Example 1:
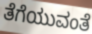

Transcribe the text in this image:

ತೆಗೆಯುವಂತೆ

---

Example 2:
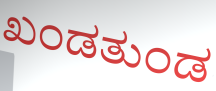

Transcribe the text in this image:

ಖಂಡತುಂಡ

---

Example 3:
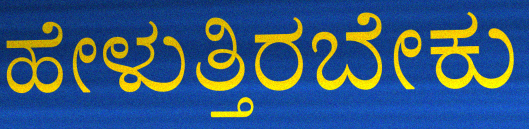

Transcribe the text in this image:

ಹೇಳುತ್ತಿರಬೇಕು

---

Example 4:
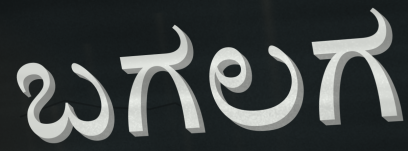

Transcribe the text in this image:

ಬಗಲಗ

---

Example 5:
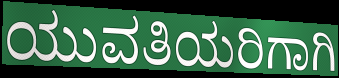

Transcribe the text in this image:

ಯುವತಿಯರಿಗಾಗಿ